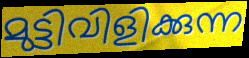
മുട്ടിവിളിക്കുന്ന